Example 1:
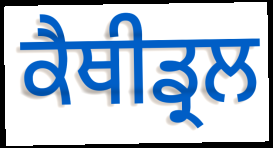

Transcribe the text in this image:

ਕੈਥੀਡ੍ਰਲ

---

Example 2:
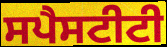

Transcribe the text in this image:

ਸਪੈਸਟੀਟੀ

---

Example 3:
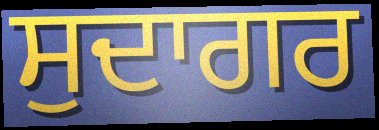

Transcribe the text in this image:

ਸੁਦਾਗਰ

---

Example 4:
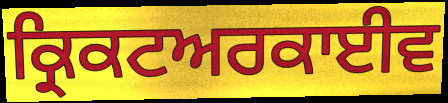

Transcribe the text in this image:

ਕ੍ਰਿਕਟਅਰਕਾਈਵ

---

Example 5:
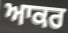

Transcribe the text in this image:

ਆਕਰ